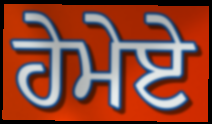
ਹੇਮੇਏ